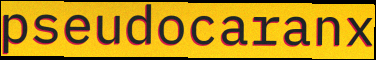
pseudocaranx